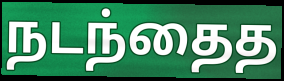
நடந்தைத